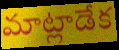
మాట్లాడేక